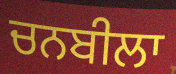
ਚਨਬੀਲਾ